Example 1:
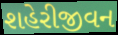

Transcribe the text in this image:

શહેરીજીવન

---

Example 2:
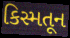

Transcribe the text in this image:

કિસ્મતૂન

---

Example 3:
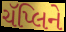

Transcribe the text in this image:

ચૅપ્લિને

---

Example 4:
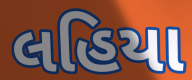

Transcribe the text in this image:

લહિયા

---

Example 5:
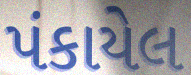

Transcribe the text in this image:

પંકાયેલ